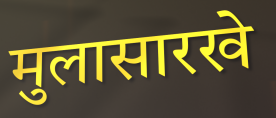
मुलासारखे